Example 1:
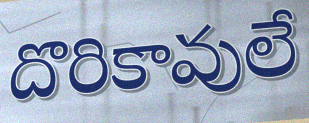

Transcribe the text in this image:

దొరికావులే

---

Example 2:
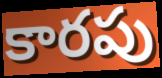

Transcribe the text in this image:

కారపు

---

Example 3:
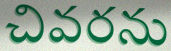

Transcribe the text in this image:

చివరను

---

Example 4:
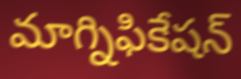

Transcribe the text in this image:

మాగ్నిఫికేషన్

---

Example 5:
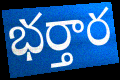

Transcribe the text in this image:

భర్తార